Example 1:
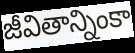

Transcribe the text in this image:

జీవితాన్నింకా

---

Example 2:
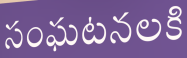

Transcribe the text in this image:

సంఘటనలకి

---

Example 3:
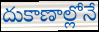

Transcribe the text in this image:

దుకాణాల్లోనే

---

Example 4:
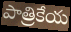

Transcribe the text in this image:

పాత్రికేయ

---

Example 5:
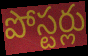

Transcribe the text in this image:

పోస్టర్లు